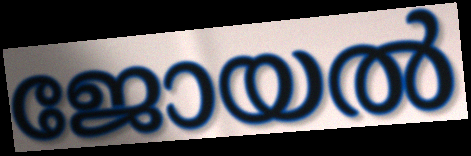
ജോയൽ